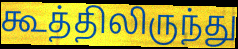
கூத்திலிருந்து